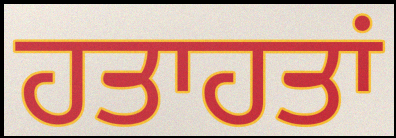
ਹਤਾਹਤਾਂ